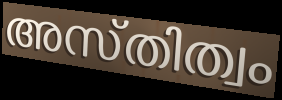
അസ്‌തിത്വം